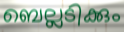
ബെല്ലടിക്കും